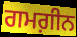
ਗਮਗ਼ੀਨ